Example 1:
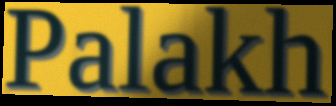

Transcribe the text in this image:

Palakh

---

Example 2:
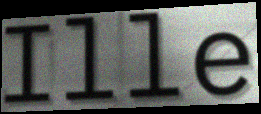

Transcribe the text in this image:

Ille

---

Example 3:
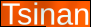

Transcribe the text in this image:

Tsinan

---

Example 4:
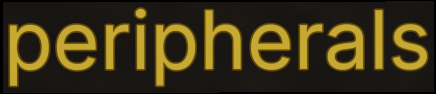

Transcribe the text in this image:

peripherals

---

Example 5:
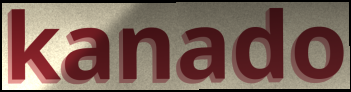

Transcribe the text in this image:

kanado